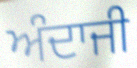
ਅੰਦਾਜੀ